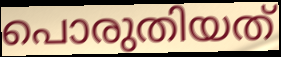
പൊരുതിയത്